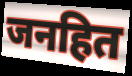
जनहित